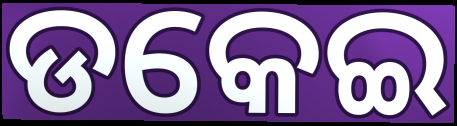
ଡକେଇ